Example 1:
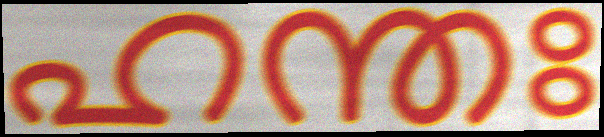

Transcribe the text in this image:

ഹന്തഃ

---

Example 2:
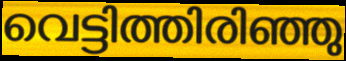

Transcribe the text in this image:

വെട്ടിത്തിരിഞ്ഞു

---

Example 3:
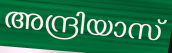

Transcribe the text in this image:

അന്ദ്രിയാസ്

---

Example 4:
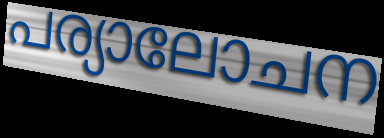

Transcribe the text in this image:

പര്യാലോചന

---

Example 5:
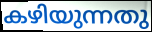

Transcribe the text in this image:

കഴിയുന്നതു